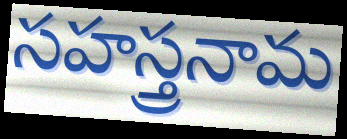
సహస్త్రనామ